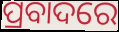
ପ୍ରବାଦରେ